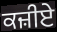
ਕਜ਼ੀਏ